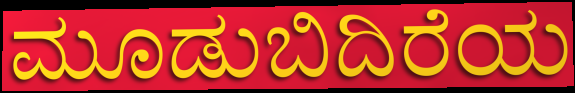
ಮೂಡುಬಿದಿರೆಯ